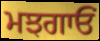
ਮਝਗਾਓਂ